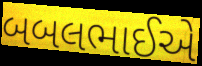
બબલભાઈએ